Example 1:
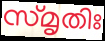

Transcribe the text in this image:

സ്മൃതിഃ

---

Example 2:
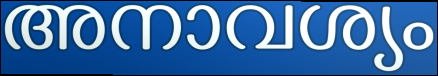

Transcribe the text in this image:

അനാവശ്യം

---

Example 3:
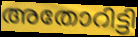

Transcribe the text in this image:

അതോറിട്ടി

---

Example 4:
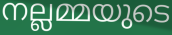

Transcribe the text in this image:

നല്ലമ്മയുടെ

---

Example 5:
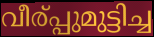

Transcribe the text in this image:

വീര്പ്പുമുട്ടിച്ച